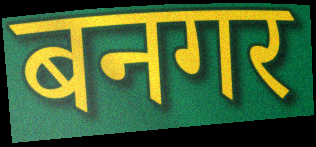
बनगर